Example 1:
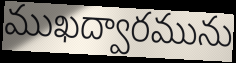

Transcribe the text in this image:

ముఖద్వారమును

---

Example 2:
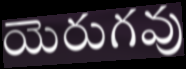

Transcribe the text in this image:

యెరుగవు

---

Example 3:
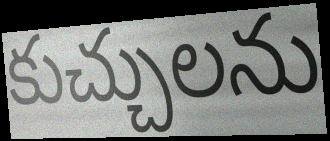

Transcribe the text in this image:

కుచ్చులను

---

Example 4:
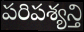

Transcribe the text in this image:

పరిపశ్యన్తి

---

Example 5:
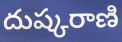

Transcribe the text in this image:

దుష్కరాణి